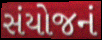
સંયોજનં